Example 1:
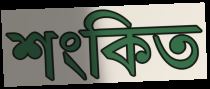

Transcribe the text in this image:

শংকিত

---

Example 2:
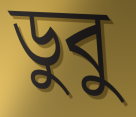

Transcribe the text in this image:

ডুবু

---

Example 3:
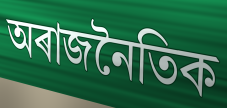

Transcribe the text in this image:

অৰাজনৈতিক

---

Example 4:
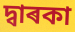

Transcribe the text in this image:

দ্বাৰকা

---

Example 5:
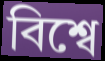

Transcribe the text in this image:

বিশ্বে